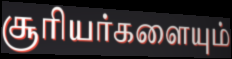
சூரியர்களையும்